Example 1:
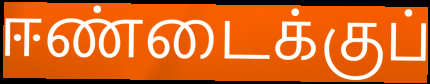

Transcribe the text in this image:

ஈண்டைக்குப்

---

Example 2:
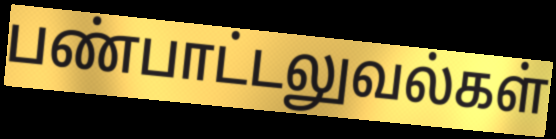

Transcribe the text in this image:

பண்பாட்டலுவல்கள்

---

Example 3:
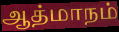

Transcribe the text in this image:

ஆத்மாநம்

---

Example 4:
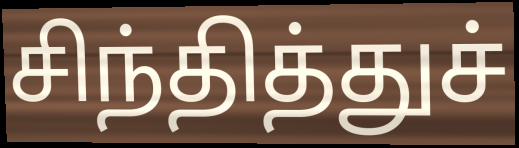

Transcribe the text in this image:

சிந்தித்துச்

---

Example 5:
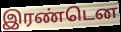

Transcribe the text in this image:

இரண்டென